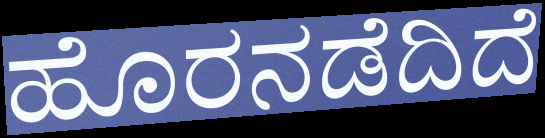
ಹೊರನಡೆದಿದೆ